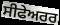
ਸੀਫੇਅਰਰ